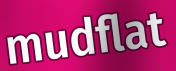
mudflat